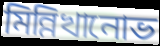
মিন্নিখানোভ